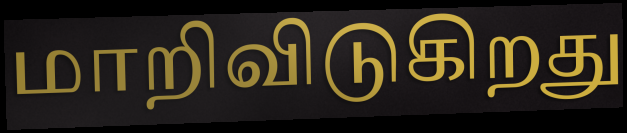
மாறிவிடுகிறது